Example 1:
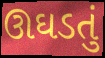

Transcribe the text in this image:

ઊઘડતું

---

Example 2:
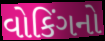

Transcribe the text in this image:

વોકિંગનો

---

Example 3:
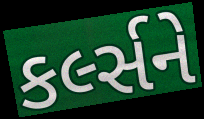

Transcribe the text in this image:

કર્લ્સને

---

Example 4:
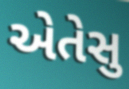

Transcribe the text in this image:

એતેસુ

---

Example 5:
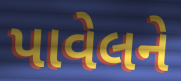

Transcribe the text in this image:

પાવેલને